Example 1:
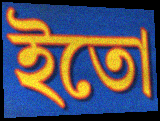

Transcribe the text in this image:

ইতো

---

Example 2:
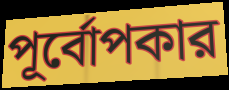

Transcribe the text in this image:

পূর্বোপকার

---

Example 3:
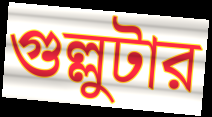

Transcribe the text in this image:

গুল্লুটার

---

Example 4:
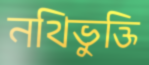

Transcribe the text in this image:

নথিভুক্তি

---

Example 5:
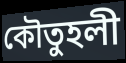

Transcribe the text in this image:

কৌতুহলী